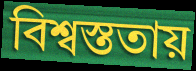
বিশ্বস্ততায়